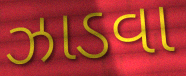
ઝાડવા